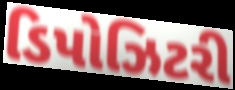
ડિપોઝિટરી